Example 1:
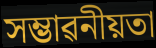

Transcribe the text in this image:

সম্ভাৱনীয়তা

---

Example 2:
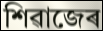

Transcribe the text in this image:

শিৱাজেৰ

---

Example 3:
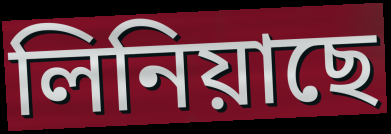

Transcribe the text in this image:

লিনিয়াছে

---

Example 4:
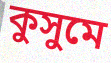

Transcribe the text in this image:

কুসুমে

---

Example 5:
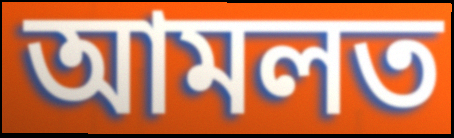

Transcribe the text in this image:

আমলত